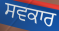
ਸਵਕਾਰ